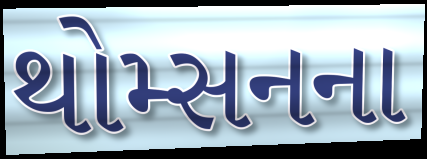
થોમ્સનના